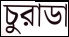
চুরাডা